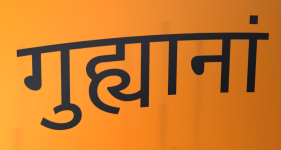
गुह्यानां